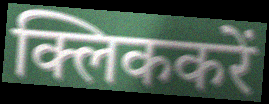
क्लिककरें